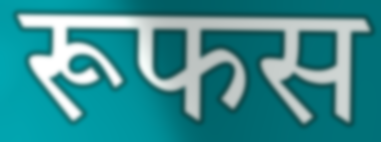
रूफस